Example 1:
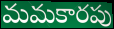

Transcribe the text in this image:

మమకారపు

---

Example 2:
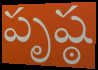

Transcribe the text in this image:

పృష్ఠ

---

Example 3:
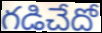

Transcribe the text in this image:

గడిచేదో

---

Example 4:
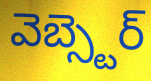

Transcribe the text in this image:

వెబ్స్టెర్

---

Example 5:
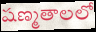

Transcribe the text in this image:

షణ్మతాలలో